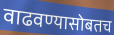
वाढवण्यासोबतच